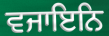
ਵਜਾਇਨਿ